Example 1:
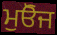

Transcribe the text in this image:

ਮੁਓੋਜ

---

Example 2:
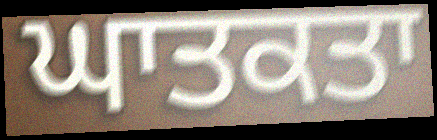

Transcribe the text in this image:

ਘਾਤਕਤਾ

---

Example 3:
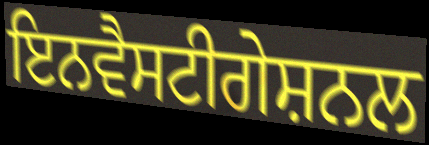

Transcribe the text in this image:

ਇਨਵੈਸਟੀਗੇਸ਼ਨਲ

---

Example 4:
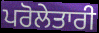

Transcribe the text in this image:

ਪਰੋਲੇਤਾਰੀ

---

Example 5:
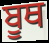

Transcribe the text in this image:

ਬੂਥ